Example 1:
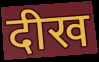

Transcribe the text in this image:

दीख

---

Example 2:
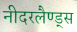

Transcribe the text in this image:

नीदरलैण्ड्स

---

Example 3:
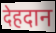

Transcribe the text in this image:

देहदान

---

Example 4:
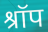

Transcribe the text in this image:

श्रॉप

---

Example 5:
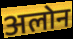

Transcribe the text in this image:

अलोन